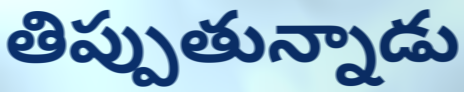
తిప్పుతున్నాడు